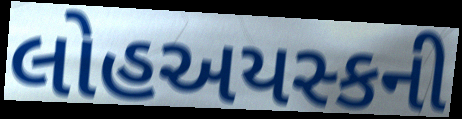
લોહઅયસ્કની